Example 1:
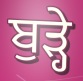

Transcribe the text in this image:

ਬੁੜ੍ਹੇ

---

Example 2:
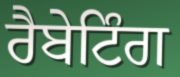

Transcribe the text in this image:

ਰੈਬੇਟਿੰਗ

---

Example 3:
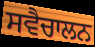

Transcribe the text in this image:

ਸਵੈਚਾਲਨ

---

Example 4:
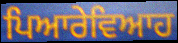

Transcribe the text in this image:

ਪਿਆਰੇਵਿਆਹ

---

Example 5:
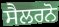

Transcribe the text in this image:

ਸੈਲਰਨੋ